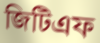
জিটিএফ